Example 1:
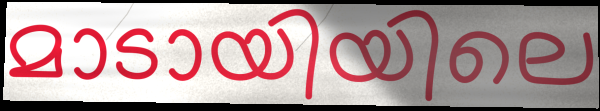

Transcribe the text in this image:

മാടായിയിലെ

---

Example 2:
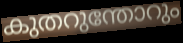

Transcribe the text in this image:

കുതറുന്തോറും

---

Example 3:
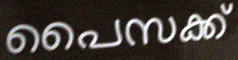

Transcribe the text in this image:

പൈസക്ക്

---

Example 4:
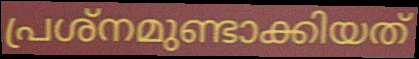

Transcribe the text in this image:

പ്രശ്നമുണ്ടാക്കിയത്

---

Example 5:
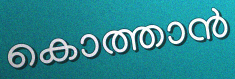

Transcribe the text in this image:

കൊത്താൻ